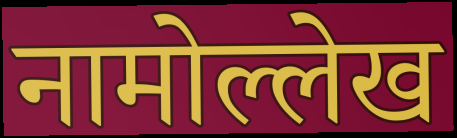
नामोल्लेख